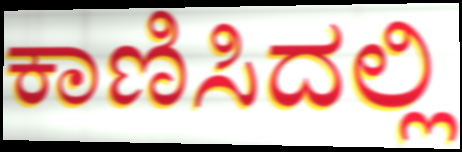
ಕಾಣಿಸಿದಲ್ಲಿ